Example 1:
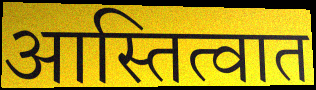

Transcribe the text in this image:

आस्तित्वात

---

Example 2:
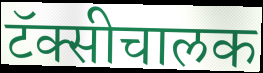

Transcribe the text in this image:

टॅक्सीचालक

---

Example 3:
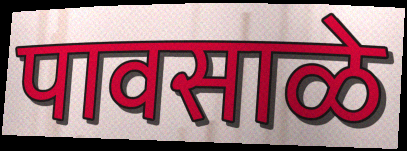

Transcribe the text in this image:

पावसाळे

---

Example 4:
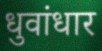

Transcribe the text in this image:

धुवांधार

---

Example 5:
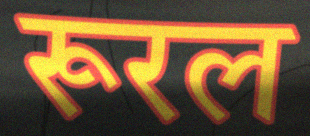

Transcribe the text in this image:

रूरल